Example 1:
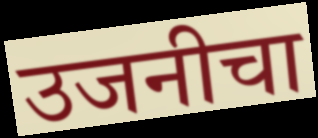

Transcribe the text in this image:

उजनीचा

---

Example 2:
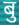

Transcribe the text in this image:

बु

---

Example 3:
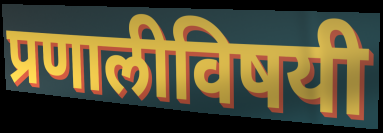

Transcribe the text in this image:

प्रणालीविषयी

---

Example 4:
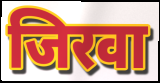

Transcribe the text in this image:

जिरवा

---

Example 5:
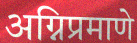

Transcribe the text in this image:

अग्निप्रमाणे